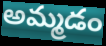
అమ్మడం